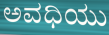
ಅವಧಿಯು